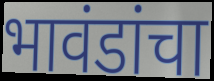
भावंडांचा